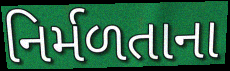
નિર્મળતાના